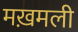
मख़मली